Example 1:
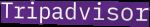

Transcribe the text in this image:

Tripadvisor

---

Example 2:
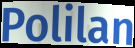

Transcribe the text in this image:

Polilan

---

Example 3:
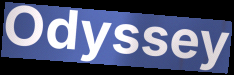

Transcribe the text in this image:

Odyssey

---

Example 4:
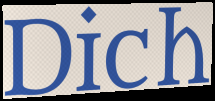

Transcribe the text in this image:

Dich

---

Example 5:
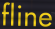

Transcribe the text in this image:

fline